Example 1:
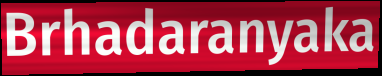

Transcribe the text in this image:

Brhadaranyaka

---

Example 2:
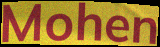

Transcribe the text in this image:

Mohen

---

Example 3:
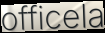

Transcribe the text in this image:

officela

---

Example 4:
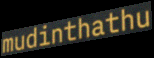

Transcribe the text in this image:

mudinthathu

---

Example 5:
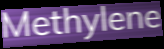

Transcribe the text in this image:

Methylene